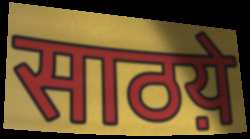
साठय़े